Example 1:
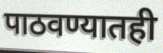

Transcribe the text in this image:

पाठवण्यातही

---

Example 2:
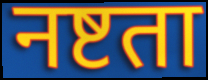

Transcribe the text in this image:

नष्टता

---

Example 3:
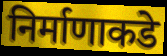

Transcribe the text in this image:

निर्माणाकडे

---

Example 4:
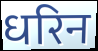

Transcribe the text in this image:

धरिन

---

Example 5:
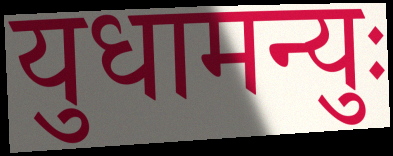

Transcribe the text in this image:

युधामन्युः